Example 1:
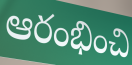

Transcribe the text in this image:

ఆరంభించి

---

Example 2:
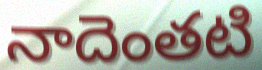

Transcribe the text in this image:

నాదెంతటి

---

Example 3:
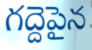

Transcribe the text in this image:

గద్దెపైన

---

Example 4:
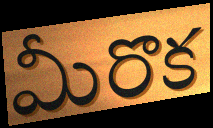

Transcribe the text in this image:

మీరొక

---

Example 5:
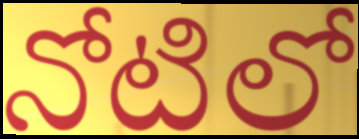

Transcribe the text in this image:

నోటిలో